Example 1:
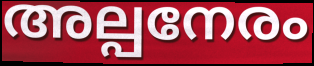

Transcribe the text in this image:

അല്പനേരം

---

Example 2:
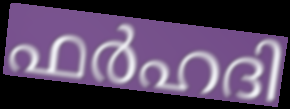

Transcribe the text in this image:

ഫർഹദി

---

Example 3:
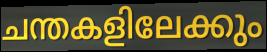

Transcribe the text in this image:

ചന്തകളിലേക്കും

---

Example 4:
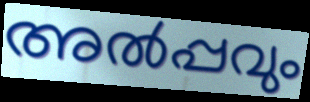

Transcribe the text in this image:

അൽപ്പവും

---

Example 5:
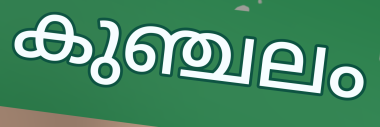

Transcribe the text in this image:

കുഞ്ചലം